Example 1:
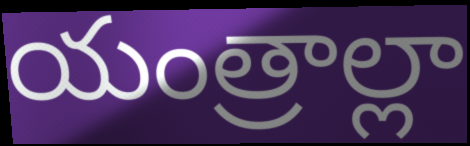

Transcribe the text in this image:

యంత్రాల్లా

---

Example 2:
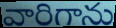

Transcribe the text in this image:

వారిగాను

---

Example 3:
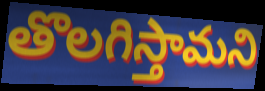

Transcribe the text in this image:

తొలగిస్తామని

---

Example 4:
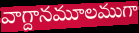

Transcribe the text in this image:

వాగ్దానమూలముగా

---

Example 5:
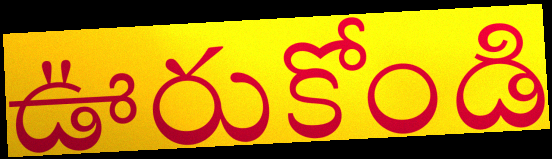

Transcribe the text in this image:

ఊరుకోండి